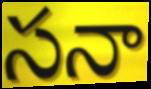
సనా